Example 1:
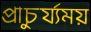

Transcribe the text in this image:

প্ৰাচুৰ্য্যময়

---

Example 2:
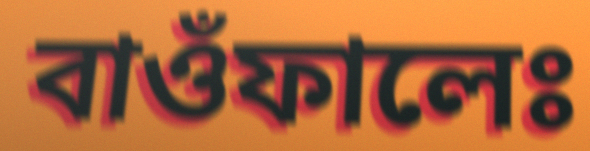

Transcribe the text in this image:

বাওঁফালেঃ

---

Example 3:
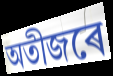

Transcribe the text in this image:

অতীজৰে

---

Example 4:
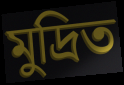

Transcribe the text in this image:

মুদ্ৰিত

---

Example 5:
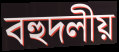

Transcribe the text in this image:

বহুদলীয়